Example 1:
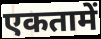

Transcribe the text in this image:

एकतामें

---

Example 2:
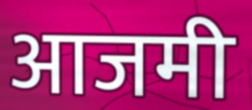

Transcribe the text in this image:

आजमी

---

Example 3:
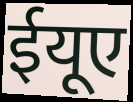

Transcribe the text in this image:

ईयूए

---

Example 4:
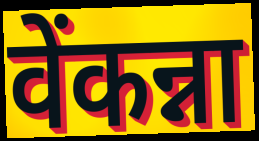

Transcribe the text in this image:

वेंकन्ना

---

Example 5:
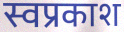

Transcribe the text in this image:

स्वप्रकाश